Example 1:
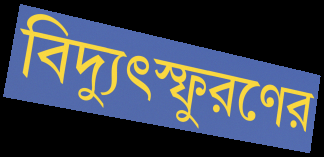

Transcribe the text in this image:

বিদ্যুৎস্ফুরণের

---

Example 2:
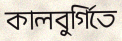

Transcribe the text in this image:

কালবুর্গিতে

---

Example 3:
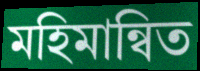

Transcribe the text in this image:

মহিমান্বিত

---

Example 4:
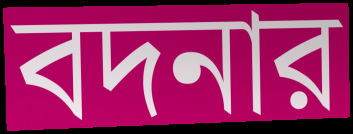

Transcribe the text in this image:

বদনার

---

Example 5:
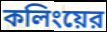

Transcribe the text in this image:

কলিংয়ের